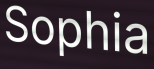
Sophia